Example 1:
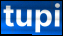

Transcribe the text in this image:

tupi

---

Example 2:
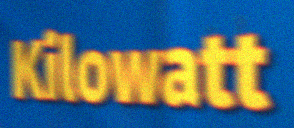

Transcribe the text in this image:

Kilowatt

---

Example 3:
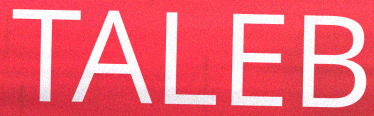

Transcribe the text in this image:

TALEB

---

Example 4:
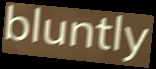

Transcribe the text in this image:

bluntly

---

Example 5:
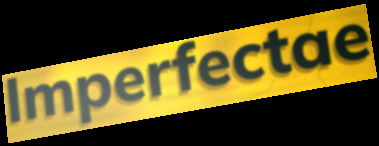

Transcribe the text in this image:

Imperfectae